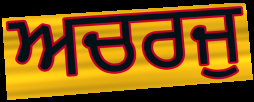
ਅਚਰਜੁ